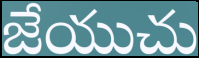
జేయుచు